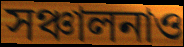
সঞ্চালনাও